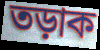
তড়াক